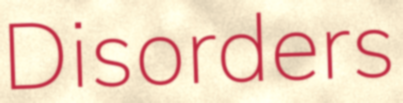
Disorders